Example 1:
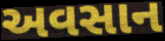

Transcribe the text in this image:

અવસાન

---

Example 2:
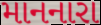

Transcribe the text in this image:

માનનારા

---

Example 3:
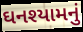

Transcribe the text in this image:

ઘનશ્યામનું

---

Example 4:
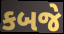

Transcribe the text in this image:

કબજે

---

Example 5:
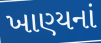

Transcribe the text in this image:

ખાણ્યનાં